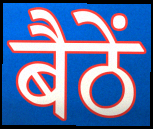
बैठें